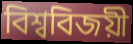
বিশ্ববিজয়ী